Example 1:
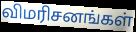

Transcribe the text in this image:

விமரிசனங்கள்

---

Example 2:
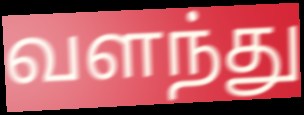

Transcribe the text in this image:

வளந்து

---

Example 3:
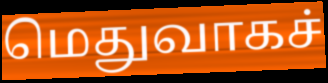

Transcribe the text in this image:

மெதுவாகச்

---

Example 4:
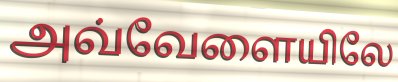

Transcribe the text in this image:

அவ்வேளையிலே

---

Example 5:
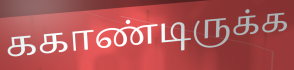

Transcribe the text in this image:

ககாண்டிருக்க